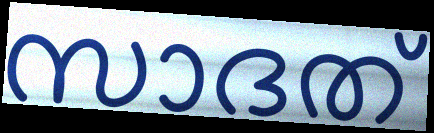
സാദത്